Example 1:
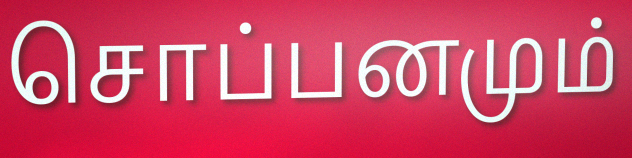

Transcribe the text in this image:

சொப்பனமும்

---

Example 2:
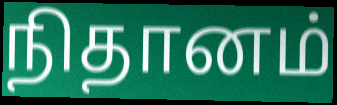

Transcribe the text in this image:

நிதானம்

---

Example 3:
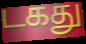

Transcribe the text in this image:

டகது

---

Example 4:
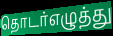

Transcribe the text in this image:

தொடர்எழுத்து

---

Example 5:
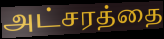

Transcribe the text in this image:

அட்சரத்தை